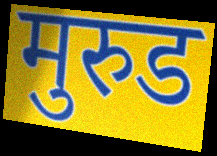
मुरुड